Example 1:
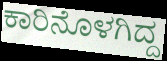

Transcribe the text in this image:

ಕಾರಿನೊಳಗಿದ್ದ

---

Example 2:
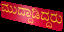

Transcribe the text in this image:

ಮುದ್ದಾಡಿದ್ದರು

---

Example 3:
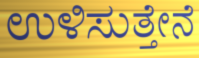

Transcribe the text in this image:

ಉಳಿಸುತ್ತೇನೆ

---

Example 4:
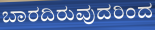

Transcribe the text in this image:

ಬಾರದಿರುವುದರಿಂದ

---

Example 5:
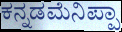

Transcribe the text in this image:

ಕನ್ನಡಮೆನಿಪ್ಪಾ